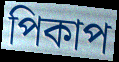
পিকাপ